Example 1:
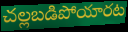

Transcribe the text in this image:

చల్లబడిపోయారట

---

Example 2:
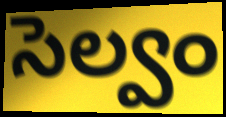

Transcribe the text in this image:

సెల్వం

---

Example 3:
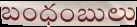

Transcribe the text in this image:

బంధంబులు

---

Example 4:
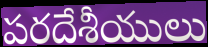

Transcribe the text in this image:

పరదేశీయులు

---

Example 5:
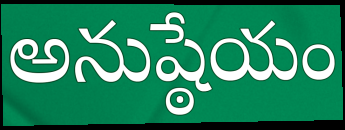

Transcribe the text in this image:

అనుష్ఠేయం